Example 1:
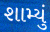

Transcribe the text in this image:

શામ્યું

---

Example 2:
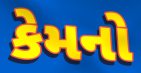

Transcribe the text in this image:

કેમનો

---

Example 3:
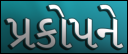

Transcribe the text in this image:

પ્રકોપને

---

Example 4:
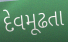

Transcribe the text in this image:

દેવમૂઢતા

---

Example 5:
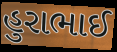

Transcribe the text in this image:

હુરાભાઈ